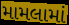
મામલામાં